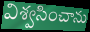
విశ్వసించాను